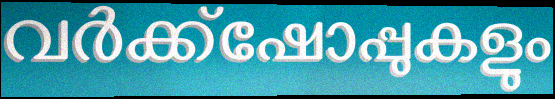
വർക്ക്ഷോപ്പുകളും